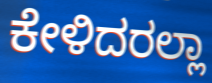
ಕೇಳಿದರಲ್ಲಾ